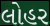
લોહર